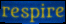
respire